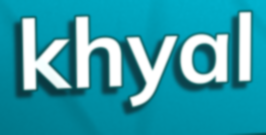
khyal